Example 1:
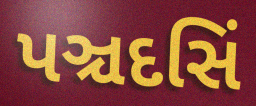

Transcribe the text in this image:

પઞ્ચદસિં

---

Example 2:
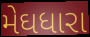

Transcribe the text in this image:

મેઘધારા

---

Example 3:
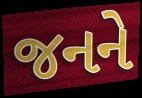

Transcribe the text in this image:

જનને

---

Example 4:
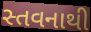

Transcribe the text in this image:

સ્તવનાથી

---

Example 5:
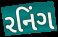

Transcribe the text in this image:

રનિંગ